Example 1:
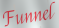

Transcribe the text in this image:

Funnel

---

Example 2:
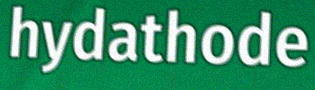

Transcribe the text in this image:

hydathode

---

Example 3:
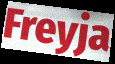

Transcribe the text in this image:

Freyja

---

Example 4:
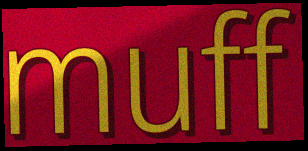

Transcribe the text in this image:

muff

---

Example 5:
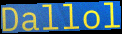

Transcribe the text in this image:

Dallol